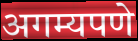
अगम्यपणे